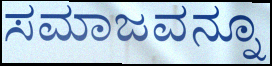
ಸಮಾಜವನ್ನೂ